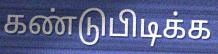
கண்டுபிடிக்க